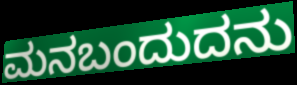
ಮನಬಂದುದನು